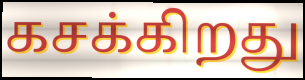
கசக்கிறது